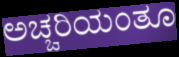
ಅಚ್ಚರಿಯಂತೂ